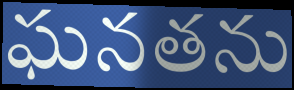
ఘనతను